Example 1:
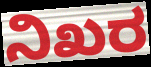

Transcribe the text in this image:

ನಿಖರ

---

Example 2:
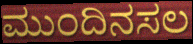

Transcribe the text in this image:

ಮುಂದಿನಸಲ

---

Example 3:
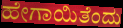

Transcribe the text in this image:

ಹೇಗಾಯಿತೆಂದು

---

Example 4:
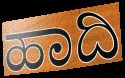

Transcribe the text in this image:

ಹಾದಿ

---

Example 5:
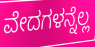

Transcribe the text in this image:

ವೇದಗಳನ್ನೆಲ್ಲ